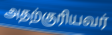
அதற்குரியவர்